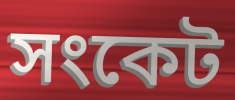
সংকেট